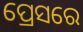
ପ୍ରେସରେ